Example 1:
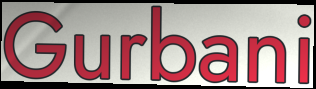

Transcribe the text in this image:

Gurbani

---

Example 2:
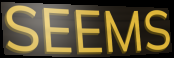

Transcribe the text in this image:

SEEMS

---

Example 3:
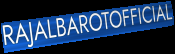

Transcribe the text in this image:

RAJALBAROTOFFICIAL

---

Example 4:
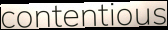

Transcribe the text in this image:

contentious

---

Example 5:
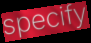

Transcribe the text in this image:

specify